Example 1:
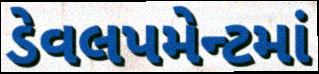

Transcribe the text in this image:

ડેવલપમેન્ટમાં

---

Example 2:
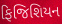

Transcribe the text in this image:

ફિજિશિયન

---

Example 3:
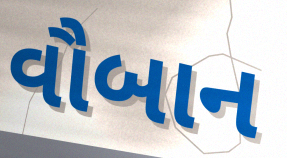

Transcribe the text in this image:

વૌબાન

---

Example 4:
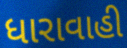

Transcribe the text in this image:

ધારાવાહી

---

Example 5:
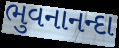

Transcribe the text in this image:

ભુવનાનન્દા